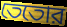
তেতোর